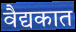
वैद्यकात